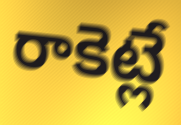
రాకెట్లే